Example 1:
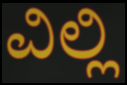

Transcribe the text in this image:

ವಿಲ್ಲಿ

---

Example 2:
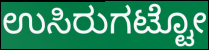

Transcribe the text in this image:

ಉಸಿರುಗಟ್ಟೋ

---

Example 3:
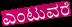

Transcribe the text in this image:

ಎಂಟುವರೆ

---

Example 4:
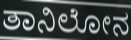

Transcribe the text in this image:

ತಾನಿಲೋನ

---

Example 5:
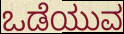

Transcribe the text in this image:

ಒಡೆಯುವ